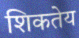
शिकतेय